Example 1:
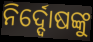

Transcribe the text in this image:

ନିର୍ଦ୍ଦୋଷଙ୍କୁ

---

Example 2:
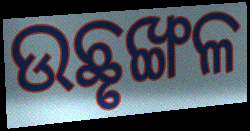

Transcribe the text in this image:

ଉଛୃଙ୍ଖଳ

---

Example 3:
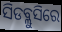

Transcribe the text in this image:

ସିଡବ୍ଲୁସିରେ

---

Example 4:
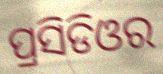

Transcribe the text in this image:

ପ୍ରସିଡିଓର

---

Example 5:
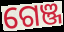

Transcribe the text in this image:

ଗେଞ୍ଜ